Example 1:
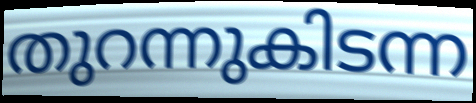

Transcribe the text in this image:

തുറന്നുകിടന്ന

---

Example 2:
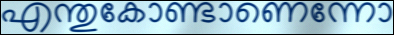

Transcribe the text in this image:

എന്തുകോണ്ടാണെന്നോ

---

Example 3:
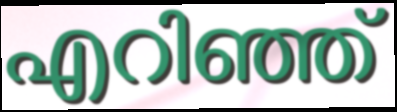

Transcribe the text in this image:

എറിഞ്ഞ്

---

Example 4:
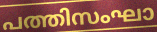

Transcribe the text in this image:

പത്തിസംഘാ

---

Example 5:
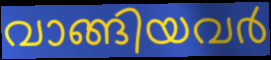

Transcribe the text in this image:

വാങ്ങിയവർ